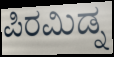
ಪಿರಮಿಡ್ನ